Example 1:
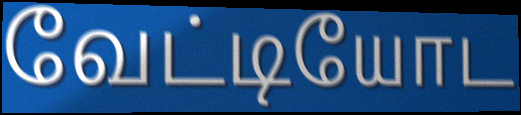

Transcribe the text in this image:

வேட்டியோட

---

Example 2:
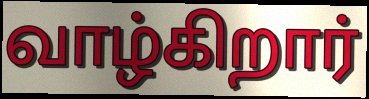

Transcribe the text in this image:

வாழ்கிறார்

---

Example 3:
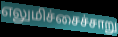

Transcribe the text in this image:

எலுமிச்சைச்சாறு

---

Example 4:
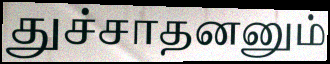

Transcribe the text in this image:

துச்சாதனனும்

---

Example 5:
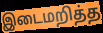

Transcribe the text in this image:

இடைமறித்த